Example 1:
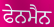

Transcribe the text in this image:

ਫੇਨਮੈਨ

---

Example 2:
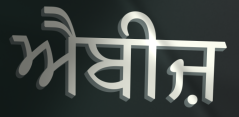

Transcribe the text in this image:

ਐਬੀਜ਼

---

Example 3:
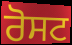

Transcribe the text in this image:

ਰੋਸਟ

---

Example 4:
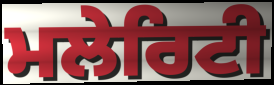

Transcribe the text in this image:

ਮਲੇਰਿਟੀ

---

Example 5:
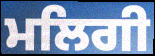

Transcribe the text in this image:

ਮਲਿਗੀ